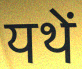
यथें